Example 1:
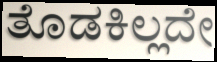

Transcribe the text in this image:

ತೊಡಕಿಲ್ಲದೇ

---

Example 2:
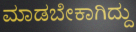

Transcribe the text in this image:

ಮಾಡಬೇಕಾಗಿದ್ದು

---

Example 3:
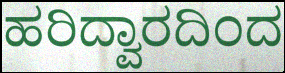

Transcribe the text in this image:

ಹರಿದ್ವಾರದಿಂದ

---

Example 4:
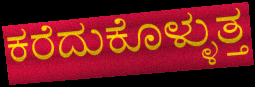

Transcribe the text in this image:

ಕರೆದುಕೊಳ್ಳುತ್ತ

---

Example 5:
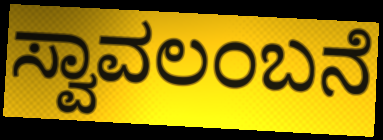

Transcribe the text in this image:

ಸ್ವಾವಲಂಬನೆ